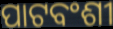
ପାଟବଂଶୀ